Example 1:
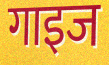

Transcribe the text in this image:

गाइज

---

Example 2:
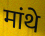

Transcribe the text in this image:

मांथे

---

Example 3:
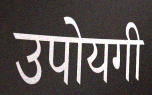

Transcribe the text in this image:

उपोयगी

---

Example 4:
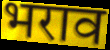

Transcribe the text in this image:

भराव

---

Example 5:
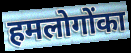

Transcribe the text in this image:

हमलोगोंका